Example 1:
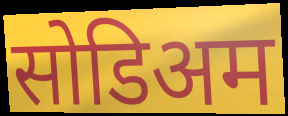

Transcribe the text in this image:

सोडिअम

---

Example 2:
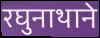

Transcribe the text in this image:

रघुनाथाने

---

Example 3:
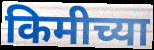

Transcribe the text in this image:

किमीच्या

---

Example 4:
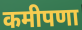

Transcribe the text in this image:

कमीपणा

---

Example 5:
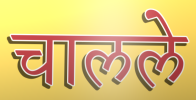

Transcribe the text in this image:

चालले